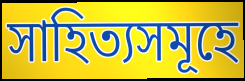
সাহিত্যসমূহে